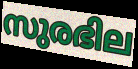
സുരഭില